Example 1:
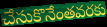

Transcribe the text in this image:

చేసుకొనేంతవరకు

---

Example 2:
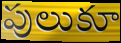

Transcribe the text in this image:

పులుకూ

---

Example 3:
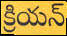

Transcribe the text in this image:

క్రియన్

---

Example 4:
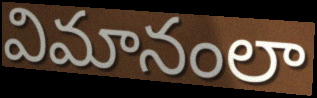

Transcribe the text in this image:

విమానంలా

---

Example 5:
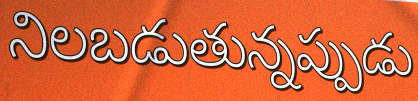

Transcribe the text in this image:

నిలబడుతున్నప్పుడు